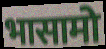
भासामो